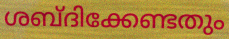
ശബ്ദിക്കേണ്ടതും